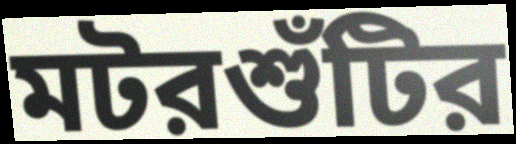
মটরশুঁটির